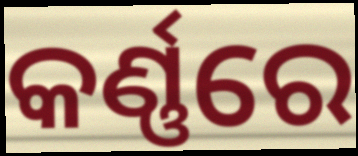
କର୍ଣ୍ଣରେ